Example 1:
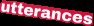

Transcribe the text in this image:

utterances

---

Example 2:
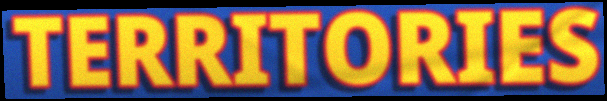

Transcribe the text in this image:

TERRITORIES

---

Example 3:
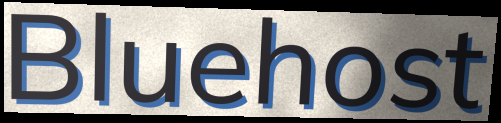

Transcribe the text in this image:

Bluehost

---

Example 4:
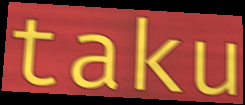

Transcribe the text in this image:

taku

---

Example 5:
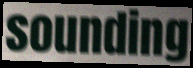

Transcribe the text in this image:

sounding